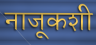
नाजूकशी